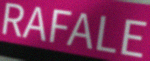
RAFALE